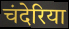
चंदेरिया